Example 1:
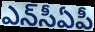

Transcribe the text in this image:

ఎన్‌సీఏపీ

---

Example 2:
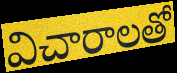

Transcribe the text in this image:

విచారాలతో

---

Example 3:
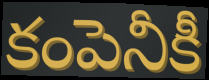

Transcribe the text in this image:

కంపెనీకీ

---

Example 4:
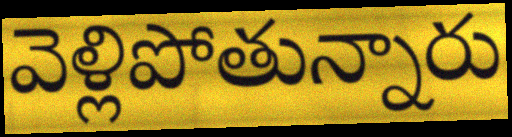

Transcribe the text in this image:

వెళ్లిపోతున్నారు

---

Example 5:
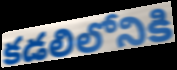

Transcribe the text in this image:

కడలిలోనికి